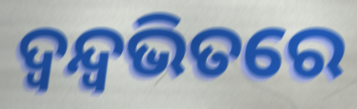
ଦ୍ୱନ୍ଦ୍ୱଭିତରେ